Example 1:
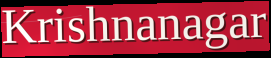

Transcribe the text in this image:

Krishnanagar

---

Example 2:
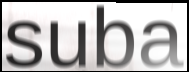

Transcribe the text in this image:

suba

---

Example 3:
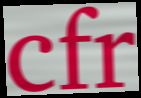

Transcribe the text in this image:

cfr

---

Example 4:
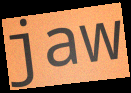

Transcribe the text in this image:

jaw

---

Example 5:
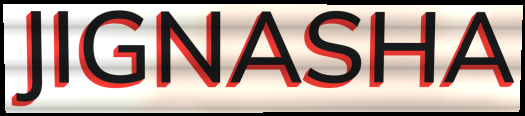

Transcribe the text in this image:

JIGNASHA